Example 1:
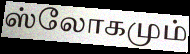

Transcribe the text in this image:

ஸ்லோகமும்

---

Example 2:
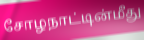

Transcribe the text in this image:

சோழநாட்டின்மீது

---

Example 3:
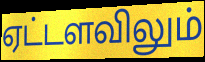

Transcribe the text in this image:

ஏட்டளவிலும்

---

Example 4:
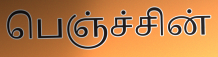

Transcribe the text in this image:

பெஞ்ச்சின்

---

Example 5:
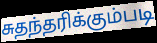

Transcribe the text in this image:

சுதந்தரிக்கும்படி